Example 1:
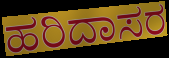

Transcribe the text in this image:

ಹರಿದಾಸರ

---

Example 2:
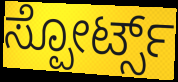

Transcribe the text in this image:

ಸ್ಪೋರ್ಟ್ಸ್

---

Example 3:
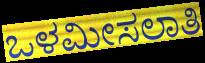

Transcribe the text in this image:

ಒಳಮೀಸಲಾತಿ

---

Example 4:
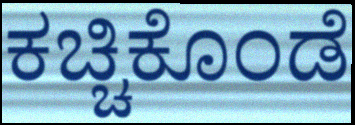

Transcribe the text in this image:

ಕಚ್ಚಿಕೊಂಡೆ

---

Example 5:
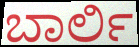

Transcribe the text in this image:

ಬಾರ್ಲಿ